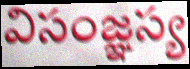
విసంజ్ఞస్య